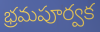
భ్రమపూర్వక